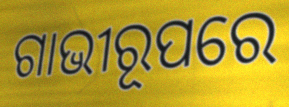
ଗାଭୀରୂପରେ